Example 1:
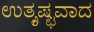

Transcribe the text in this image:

ಉತ್ಕೃಷ್ಟವಾದ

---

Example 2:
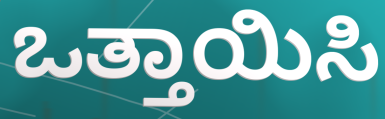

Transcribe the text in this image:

ಒತ್ತಾಯಿಸಿ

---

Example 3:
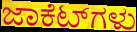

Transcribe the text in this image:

ಜಾಕೆಟ್‌ಗಳು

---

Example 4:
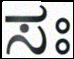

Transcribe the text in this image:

ಸಃ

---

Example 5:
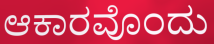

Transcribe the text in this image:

ಆಕಾರವೊಂದು